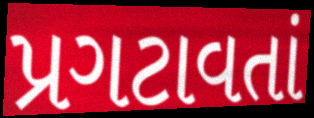
પ્રગટાવતાં